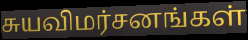
சுயவிமர்சனங்கள்